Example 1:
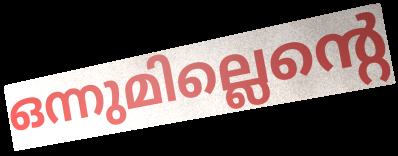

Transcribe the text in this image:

ഒന്നുമില്ലെന്റെ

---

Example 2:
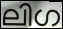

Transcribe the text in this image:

ലിഗ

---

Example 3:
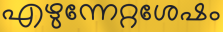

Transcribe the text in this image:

എഴുന്നേറ്റശേഷം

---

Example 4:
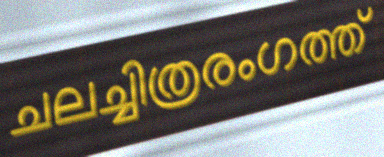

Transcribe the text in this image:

ചലച്ചിത്രരംഗത്ത്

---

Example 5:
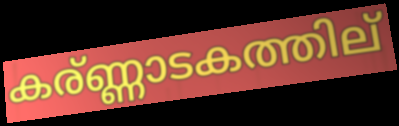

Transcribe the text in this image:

കര്ണ്ണാടകത്തില്